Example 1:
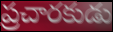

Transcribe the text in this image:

ప్రచారకుడు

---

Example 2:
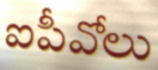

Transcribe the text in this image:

ఐపీవోలు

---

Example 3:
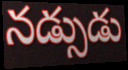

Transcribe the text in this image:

నడ్సుడు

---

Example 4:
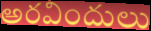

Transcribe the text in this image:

అరవిందులు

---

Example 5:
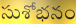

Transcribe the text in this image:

సుశోభనం